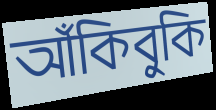
আঁকিবুকি